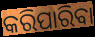
କରିପାରିବା